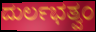
ದುರ್ಲಭತ್ವಂ